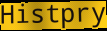
Histpry